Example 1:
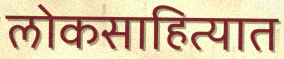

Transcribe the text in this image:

लोकसाहित्यात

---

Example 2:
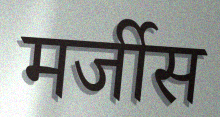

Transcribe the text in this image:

मर्जीस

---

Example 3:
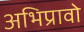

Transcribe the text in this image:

अभिप्रावो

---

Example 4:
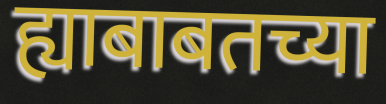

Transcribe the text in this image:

ह्याबाबतच्या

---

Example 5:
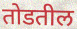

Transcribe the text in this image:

तोडतील